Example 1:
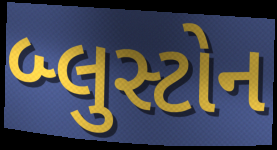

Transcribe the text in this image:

બ્લુસ્ટોન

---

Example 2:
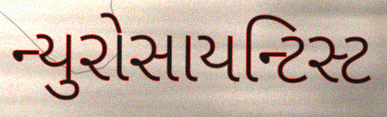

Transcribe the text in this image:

ન્યુરોસાયન્ટિસ્ટ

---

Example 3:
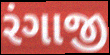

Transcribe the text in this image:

રંગાજી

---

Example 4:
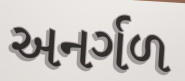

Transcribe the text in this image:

અનર્ગળ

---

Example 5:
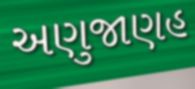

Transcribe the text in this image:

અણુજાણહ